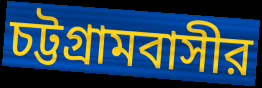
চট্টগ্রামবাসীর